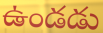
ఉండడు